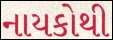
નાયકોથી